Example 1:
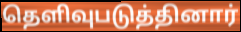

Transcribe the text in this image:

தெளிவுபடுத்தினார்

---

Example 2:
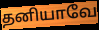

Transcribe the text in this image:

தனியாவே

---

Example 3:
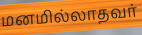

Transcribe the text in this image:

மனமில்லாதவர்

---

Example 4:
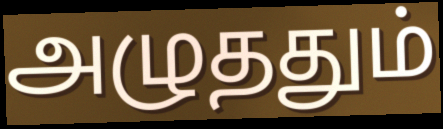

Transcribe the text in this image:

அழுததும்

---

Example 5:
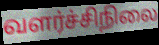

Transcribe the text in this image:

வளர்ச்சிநிலை